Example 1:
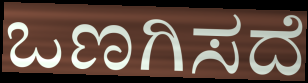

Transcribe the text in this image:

ಒಣಗಿಸದೆ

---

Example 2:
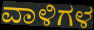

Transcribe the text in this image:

ವಾಳಿಗಳ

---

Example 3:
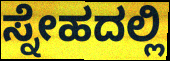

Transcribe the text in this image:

ಸ್ನೇಹದಲ್ಲಿ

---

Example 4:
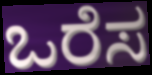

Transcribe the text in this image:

ಒರೆಸ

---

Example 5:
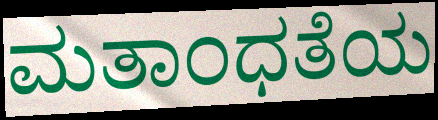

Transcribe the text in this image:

ಮತಾಂಧತೆಯ